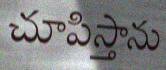
చూపిస్తాను